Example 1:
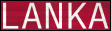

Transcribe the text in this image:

LANKA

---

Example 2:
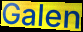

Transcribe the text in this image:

Galen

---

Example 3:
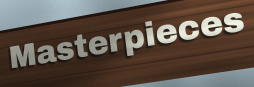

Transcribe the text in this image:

Masterpieces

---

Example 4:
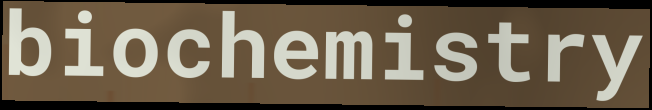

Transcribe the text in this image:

biochemistry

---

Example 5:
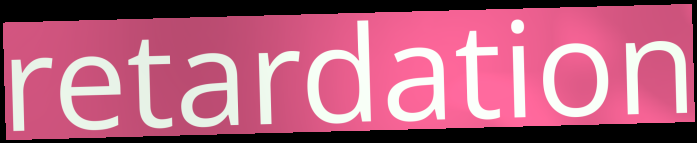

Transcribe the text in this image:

retardation